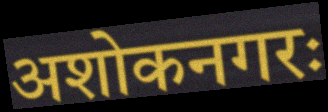
अशोकनगरः